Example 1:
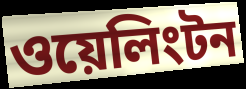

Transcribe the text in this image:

ওয়েলিংটন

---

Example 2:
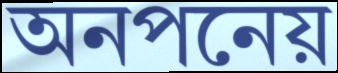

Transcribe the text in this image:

অনপনেয়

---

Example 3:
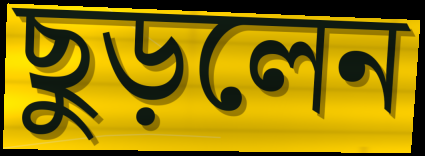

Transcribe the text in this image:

ছুড়লেন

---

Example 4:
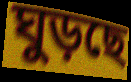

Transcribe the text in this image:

ঘুড়ছে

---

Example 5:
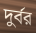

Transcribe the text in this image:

দুর্বর